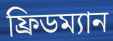
ফ্রিডম্যান